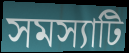
সমস্যাটি